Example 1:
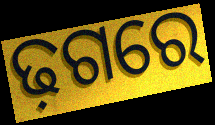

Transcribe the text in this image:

ଢ଼ଗରେ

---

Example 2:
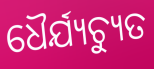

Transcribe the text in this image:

ଧୈର୍ଯ୍ୟଚ୍ୟୁତ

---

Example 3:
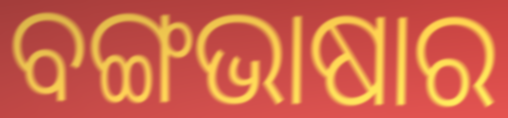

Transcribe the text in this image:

ବଙ୍ଗଭାଷାର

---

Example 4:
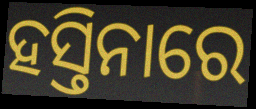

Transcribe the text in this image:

ହସ୍ତିନାରେ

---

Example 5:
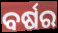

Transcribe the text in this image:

ବର୍ଷର